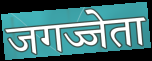
जगज्जेता